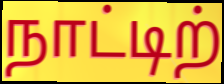
நாட்டிற்